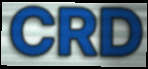
CRD